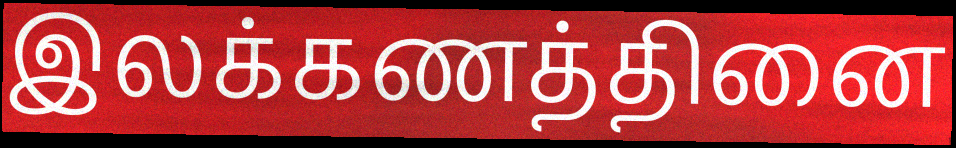
இலக்கணத்தினை